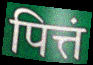
पित्तं